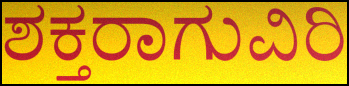
ಶಕ್ತರಾಗುವಿರಿ